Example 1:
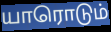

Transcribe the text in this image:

யாரொடும்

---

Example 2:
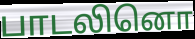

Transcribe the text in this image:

பாடலினொ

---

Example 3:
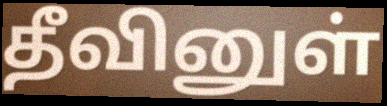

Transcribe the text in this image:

தீவினுள்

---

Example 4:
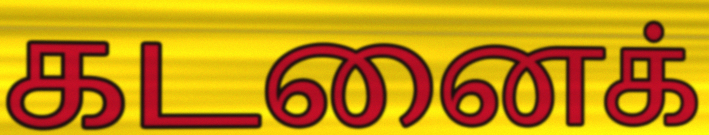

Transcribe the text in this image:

கடனைக்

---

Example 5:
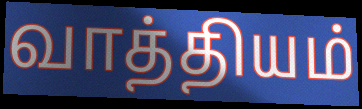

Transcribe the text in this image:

வாத்தியம்